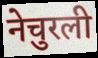
नेचुरली